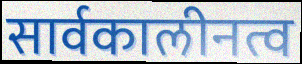
सार्वकालीनत्व